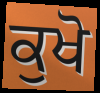
ਕੁਖੋ